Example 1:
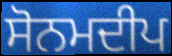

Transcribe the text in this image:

ਸੋਨਮਦੀਪ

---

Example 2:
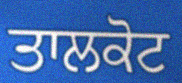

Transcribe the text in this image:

ਤਾਲਕੋਟ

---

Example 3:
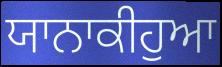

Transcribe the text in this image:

ਯਾਨਾਕੀਹੁਆ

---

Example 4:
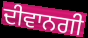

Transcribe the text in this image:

ਦੀਵਾਨਗੀ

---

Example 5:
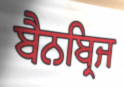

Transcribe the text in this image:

ਬੈਨਬ੍ਰਿਜ